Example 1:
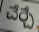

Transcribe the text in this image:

చేర్చే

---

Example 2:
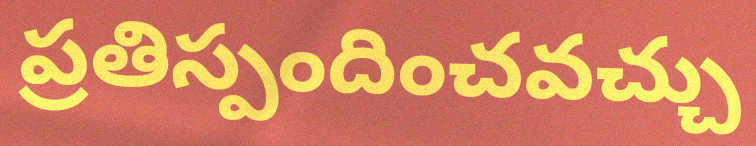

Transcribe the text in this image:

ప్రతిస్పందించవచ్చు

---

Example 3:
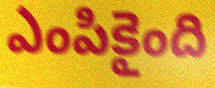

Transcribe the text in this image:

ఎంపికైంది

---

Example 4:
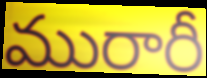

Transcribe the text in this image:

మురారీ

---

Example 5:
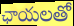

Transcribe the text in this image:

ఛాయలతో